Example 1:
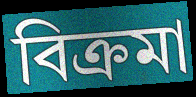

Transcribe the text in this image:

বিক্রমা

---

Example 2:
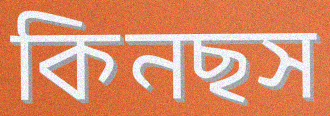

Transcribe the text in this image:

কিনছস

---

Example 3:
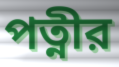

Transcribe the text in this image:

পত্নীর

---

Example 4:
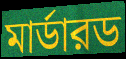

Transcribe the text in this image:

মার্ডারড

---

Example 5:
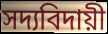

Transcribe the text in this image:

সদ্যবিদায়ী